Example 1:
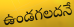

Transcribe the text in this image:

ఉండగలదనే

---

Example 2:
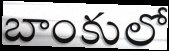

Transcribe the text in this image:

బాంకులో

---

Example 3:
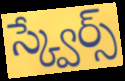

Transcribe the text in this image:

స్క్వేర్స్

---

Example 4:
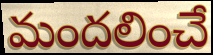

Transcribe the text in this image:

మందలించే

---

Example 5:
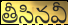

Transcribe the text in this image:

తీసినవీ